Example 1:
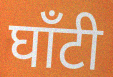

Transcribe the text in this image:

घाँटी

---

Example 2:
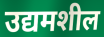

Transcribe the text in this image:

उद्यमशील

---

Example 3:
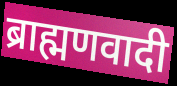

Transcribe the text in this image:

ब्राह्मणवादी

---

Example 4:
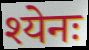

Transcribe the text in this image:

श्येनः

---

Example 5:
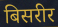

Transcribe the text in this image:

बिसरीर